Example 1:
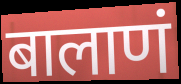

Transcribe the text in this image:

बालाणं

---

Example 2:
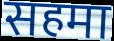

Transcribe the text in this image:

सहमा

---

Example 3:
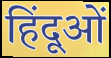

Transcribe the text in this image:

हिंदूओं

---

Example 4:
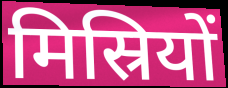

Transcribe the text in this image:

मिस्रियों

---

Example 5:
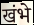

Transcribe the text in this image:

खंभे